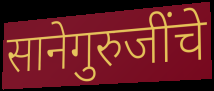
सानेगुरुजींचे